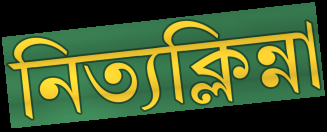
নিত্যক্লিন্না